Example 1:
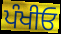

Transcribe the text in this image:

ਪੰਖੀਓ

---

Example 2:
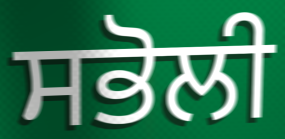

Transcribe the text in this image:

ਸਭੋਲੀ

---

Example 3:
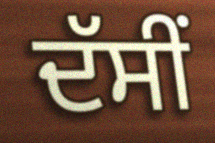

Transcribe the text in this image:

ਦੱਸੀਂ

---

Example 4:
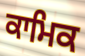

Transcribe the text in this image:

ਕਾਮਿਕ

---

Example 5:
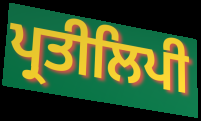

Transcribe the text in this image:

ਪ੍ਰਤੀਲਿਪੀ